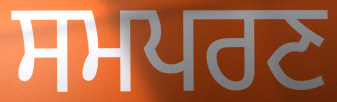
ਸਮਪਰਣ